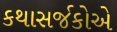
કથાસર્જકોએ